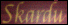
Skardu